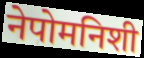
नेपोमनिशी